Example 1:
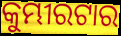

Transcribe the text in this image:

କୁମ୍ଭୀରଟାର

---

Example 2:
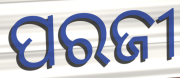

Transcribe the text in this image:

ପରଜୀ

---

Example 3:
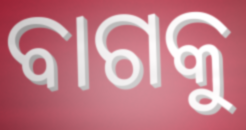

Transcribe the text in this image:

ବାଗକୁ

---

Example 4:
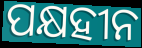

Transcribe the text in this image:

ପକ୍ଷହୀନ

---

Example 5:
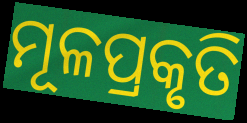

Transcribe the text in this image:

ମୂଳପ୍ରକୃତି